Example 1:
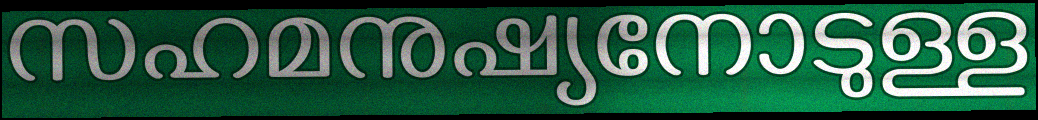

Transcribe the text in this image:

സഹമനുഷ്യനോടുള്ള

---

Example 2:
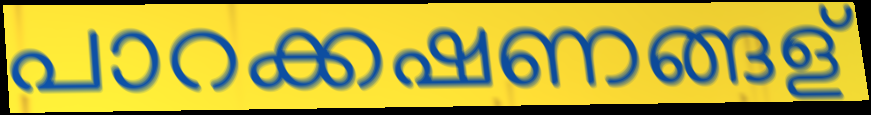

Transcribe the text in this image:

പാറക്കഷണങ്ങള്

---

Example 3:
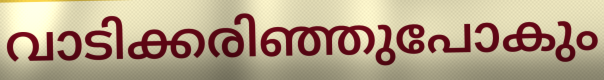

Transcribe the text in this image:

വാടിക്കരിഞ്ഞുപോകും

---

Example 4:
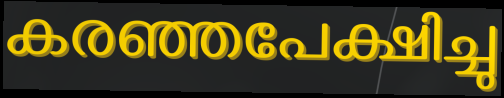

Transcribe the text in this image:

കരഞ്ഞപേക്ഷിച്ചു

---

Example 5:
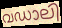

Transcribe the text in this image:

വഡാലി